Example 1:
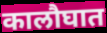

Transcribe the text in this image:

कालौघात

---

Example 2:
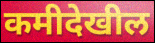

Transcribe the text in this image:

कमीदेखील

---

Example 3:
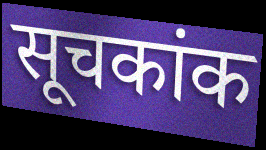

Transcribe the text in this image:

सूचकांक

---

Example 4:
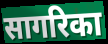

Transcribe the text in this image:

सागरिका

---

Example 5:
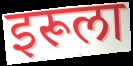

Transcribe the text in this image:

इरूला